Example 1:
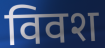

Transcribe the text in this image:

विवश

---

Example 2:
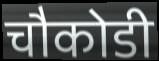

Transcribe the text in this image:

चौकोडी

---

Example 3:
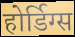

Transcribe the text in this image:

होर्डिग्स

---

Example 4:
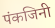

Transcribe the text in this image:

पंकजिनी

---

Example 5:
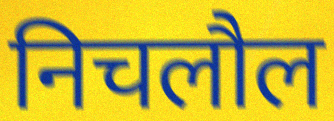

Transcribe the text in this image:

निचलौल